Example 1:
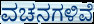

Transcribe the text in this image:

ವಚನಗಳಿವೆ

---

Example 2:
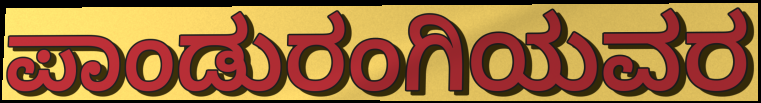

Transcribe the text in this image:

ಪಾಂಡುರಂಗಿಯವರ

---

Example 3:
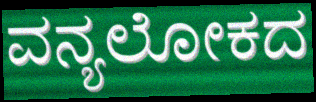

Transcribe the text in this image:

ವನ್ಯಲೋಕದ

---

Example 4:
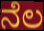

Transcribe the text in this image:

ನೆಲ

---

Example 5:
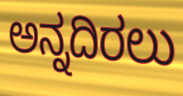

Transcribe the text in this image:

ಅನ್ನದಿರಲು